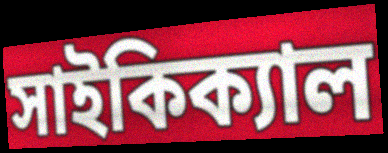
সাইকিক্যাল